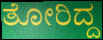
ತೋರಿದ್ದ